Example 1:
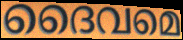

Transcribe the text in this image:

ദൈവമെ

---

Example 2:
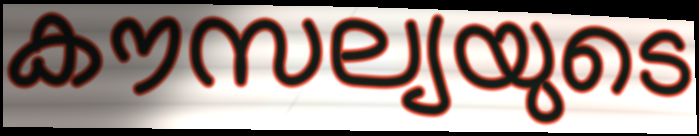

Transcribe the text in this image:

കൗസല്യയുടെ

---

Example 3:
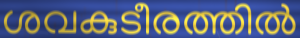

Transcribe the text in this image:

ശവകുടീരത്തിൽ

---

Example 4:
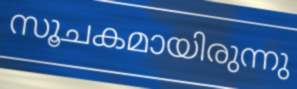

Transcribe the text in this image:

സൂചകമായിരുന്നു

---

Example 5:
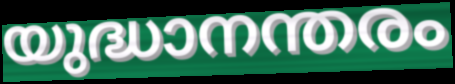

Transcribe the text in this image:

യുദ്ധാനന്തരം